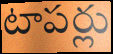
టాపర్లు